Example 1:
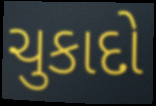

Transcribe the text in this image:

ચુકાદો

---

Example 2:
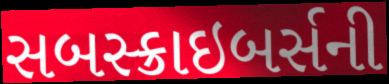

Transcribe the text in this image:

સબસ્ક્રાઇબર્સની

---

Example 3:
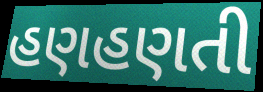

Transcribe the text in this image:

હણહણતી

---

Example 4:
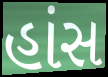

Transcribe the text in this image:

હાંસ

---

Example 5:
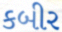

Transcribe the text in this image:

કબીર